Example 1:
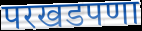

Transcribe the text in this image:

परखडपणा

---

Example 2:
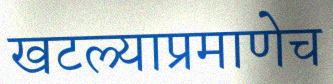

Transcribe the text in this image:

खटल्याप्रमाणेच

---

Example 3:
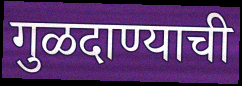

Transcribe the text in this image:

गुळदाण्याची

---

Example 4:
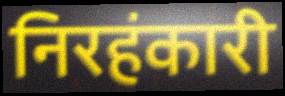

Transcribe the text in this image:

निरहंकारी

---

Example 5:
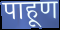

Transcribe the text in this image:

पाहूण